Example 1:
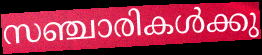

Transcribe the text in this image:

സഞ്ചാരികൾക്കു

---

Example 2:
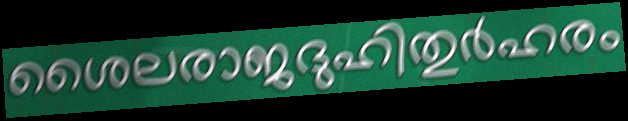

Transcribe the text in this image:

ശൈലരാജദുഹിതുർഹരം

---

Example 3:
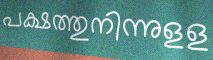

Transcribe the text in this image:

പക്ഷത്തുനിന്നുളള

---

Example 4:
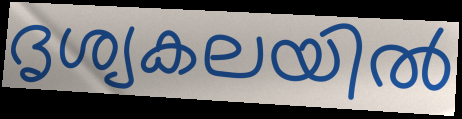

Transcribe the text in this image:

ദൃശ്യകലയിൽ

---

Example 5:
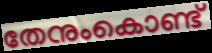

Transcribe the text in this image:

തേനുംകൊണ്ട്